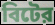
বিটের